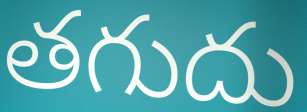
తగుదు